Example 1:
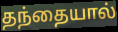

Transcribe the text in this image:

தந்தையால்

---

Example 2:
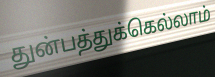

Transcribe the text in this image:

துன்பத்துக்கெல்லாம்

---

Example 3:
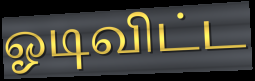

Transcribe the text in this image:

ஓடிவிட்ட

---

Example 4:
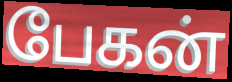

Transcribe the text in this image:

பேகன்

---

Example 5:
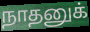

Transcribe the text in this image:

நாதனுக்